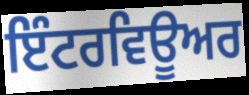
ਇੰਟਰਵਿਊਅਰ